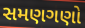
સમણગણો